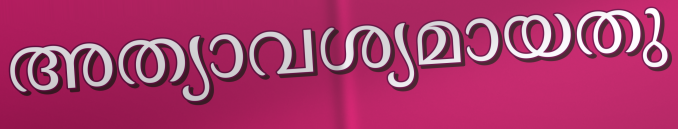
അത്യാവശ്യമായതു